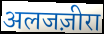
अलजज़ीरा